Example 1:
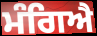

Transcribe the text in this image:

ਮੰਗਿਐ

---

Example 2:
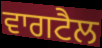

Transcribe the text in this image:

ਵਾਗਟੈਲ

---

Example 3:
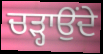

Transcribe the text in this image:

ਚੜ੍ਹਾਉਂਦੇ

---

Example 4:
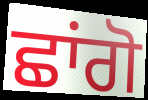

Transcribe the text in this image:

ਛਾਂਗੋ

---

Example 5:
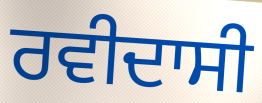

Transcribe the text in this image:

ਰਵੀਦਾਸੀ